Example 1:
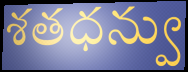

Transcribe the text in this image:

శతధన్వు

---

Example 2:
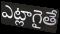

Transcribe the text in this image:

ఎట్లాగైతే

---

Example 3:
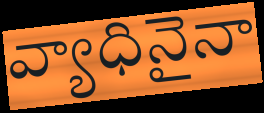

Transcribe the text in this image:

వ్యాధినైనా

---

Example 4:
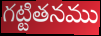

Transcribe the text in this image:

గట్టితనము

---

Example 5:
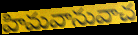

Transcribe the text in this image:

హిమవానువాచ